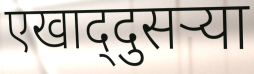
एखाद्‌दुसऱ्या